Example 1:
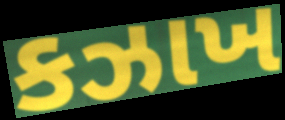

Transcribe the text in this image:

કઝાખ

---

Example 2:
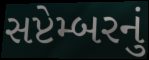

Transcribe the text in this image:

સપ્ટેમ્બરનું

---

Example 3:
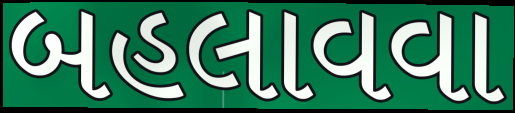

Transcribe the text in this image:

બહલાવવા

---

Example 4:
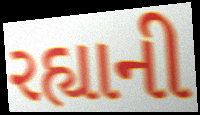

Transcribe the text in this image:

રહ્યાની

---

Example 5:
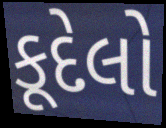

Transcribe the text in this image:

કૂદેલો